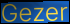
Gezer